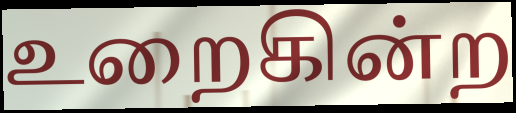
உறைகின்ற